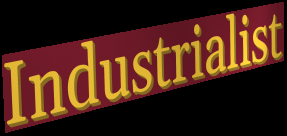
Industrialist